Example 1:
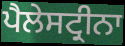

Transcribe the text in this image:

ਪੈਲੇਸਟ੍ਰੀਨਾ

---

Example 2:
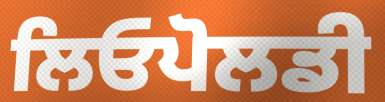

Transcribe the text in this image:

ਲਿਓਪੋਲਡੀ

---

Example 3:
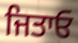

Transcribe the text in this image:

ਜਿਤਾਓ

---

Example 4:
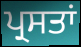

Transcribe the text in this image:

ਪ੍ਰਸਤਾਂ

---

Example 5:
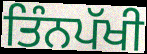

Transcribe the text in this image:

ਤਿੰਨਪੱਖੀ